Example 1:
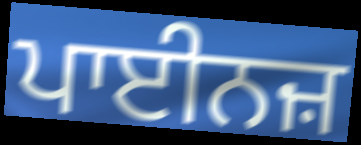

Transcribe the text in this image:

ਪਾਈਨਜ਼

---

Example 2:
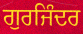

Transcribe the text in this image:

ਗੁਰਜਿੰਦਰ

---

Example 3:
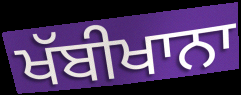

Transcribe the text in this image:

ਖੱਬੀਖਾਨਾ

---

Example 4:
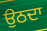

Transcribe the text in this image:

ਉਠਦਾ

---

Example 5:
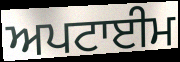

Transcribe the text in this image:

ਅਪਟਾਈਮ